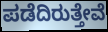
ಪಡೆದಿರುತ್ತೇವೆ